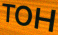
TOH